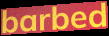
barbed